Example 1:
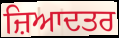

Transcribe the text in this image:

ਜ਼ਿਆਦਤਰ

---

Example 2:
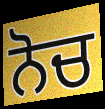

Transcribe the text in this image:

ਨੋਚ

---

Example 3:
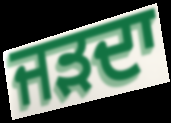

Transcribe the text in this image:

ਜੜਦਾ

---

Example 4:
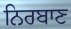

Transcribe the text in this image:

ਨਿਰਬਾਣ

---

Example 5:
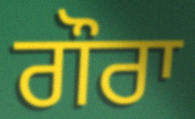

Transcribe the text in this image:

ਗੌਰਾ